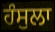
ਹੰਸੁਲਾ